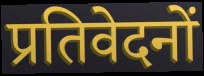
प्रतिवेदनों